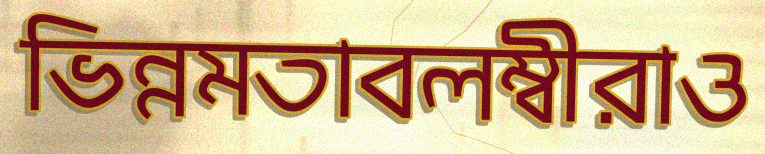
ভিন্নমতাবলম্বীরাও